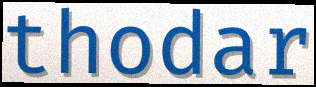
thodar